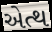
એત્થ